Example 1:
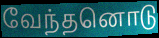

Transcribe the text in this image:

வேந்தனொடு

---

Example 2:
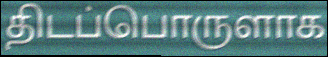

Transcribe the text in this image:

திடப்பொருளாக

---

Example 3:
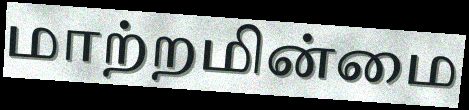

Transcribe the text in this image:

மாற்றமின்மை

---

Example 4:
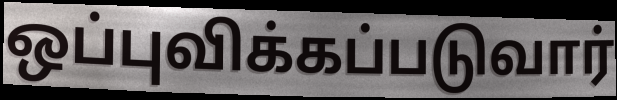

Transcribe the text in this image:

ஒப்புவிக்கப்படுவார்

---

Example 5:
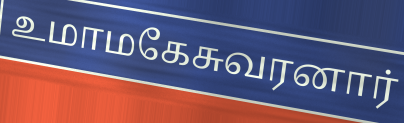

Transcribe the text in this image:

உமாமகேசுவரனார்